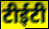
टीईटी